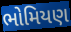
ભોમિયણ